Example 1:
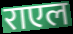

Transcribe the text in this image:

राएल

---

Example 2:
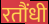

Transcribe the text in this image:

रतौंधी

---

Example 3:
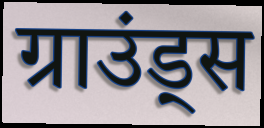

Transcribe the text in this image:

ग्राउंड्स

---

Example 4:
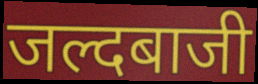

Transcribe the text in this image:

जल्दबाजी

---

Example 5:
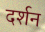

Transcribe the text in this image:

दर्शन